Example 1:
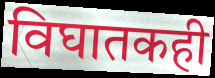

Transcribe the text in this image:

विघातकही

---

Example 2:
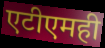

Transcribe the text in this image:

एटीएमही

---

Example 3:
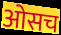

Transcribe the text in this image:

ओसच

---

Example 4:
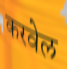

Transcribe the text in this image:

करवेल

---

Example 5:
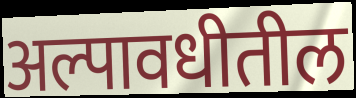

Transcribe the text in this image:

अल्पावधीतील